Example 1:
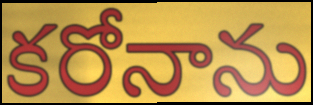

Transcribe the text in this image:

కరోనాను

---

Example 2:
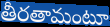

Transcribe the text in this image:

తీరతామంటూ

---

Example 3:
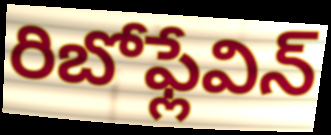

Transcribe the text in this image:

రిబోఫ్లేవిన్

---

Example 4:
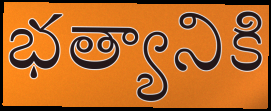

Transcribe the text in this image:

భత్యానికి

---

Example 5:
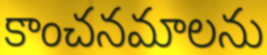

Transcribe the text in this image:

కాంచనమాలను